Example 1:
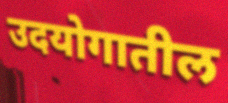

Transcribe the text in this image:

उदयोगातील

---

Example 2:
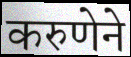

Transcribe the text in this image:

करुणेने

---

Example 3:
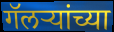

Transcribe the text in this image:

गॅलर्‍यांच्या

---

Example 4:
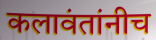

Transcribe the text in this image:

कलावंतांनीच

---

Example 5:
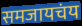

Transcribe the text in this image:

समजायचंय